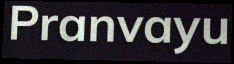
Pranvayu